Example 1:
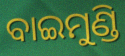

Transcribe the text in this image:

ବାଇମୁଣ୍ଡି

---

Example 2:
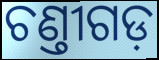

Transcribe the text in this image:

ଚଣ୍ତୀଗଡ଼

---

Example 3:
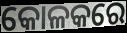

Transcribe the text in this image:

କୋଳକରେ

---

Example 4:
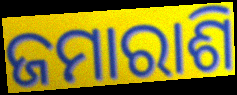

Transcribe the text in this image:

ଜମାରାଶି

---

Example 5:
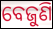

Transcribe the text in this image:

ବେଜୁଣି